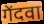
गेंदवा